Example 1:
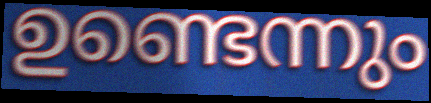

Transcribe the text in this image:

ഉണ്ടെന്നും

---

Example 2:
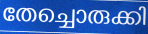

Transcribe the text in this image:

തേച്ചൊരുക്കി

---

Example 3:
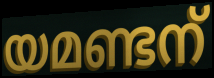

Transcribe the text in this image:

യമണ്ടന്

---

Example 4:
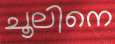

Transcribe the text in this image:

ചൂലിനെ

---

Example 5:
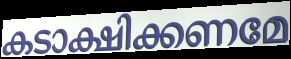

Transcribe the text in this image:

കടാക്ഷിക്കണമേ